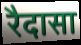
रैदासा